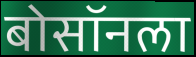
बोसॉनला